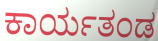
ಕಾರ್ಯತಂಡ